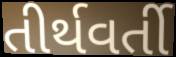
તીર્થવર્તી